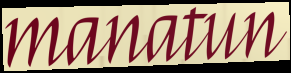
manatun